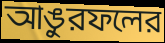
আঙুরফলের